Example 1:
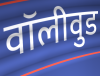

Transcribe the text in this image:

वॉलीवुड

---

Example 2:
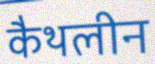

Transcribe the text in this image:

कैथलीन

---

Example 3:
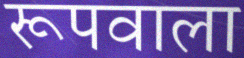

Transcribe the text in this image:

रूपवाला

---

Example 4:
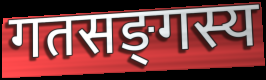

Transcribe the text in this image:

गतसङ्गस्य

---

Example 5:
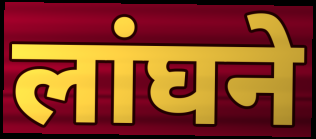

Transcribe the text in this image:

लांघने